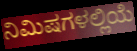
ನಿಮಿಷಗಳಲ್ಲಿಯೆ